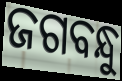
ଜଗବନ୍ଧୁ